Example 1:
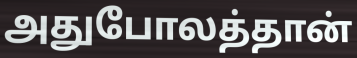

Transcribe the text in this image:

அதுபோலத்தான்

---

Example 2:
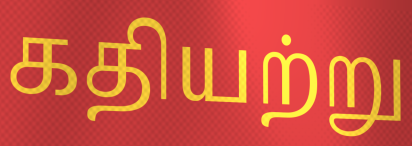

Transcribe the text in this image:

கதியற்று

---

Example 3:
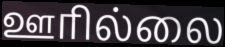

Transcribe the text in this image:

ஊரில்லை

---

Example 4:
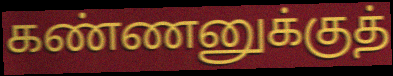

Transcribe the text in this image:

கண்ணனுக்குத்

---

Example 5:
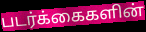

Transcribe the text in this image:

படர்க்கைகளின்